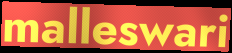
malleswari